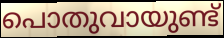
പൊതുവായുണ്ട്